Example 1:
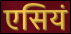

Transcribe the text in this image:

एसियं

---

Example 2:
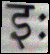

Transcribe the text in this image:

इः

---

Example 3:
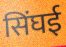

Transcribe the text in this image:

सिंघई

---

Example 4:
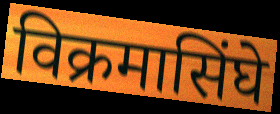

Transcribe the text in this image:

विक्रमासिंघे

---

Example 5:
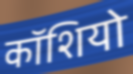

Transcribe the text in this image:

कॉशियो